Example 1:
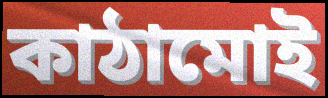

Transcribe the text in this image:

কাঠামোই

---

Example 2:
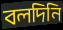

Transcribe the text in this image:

বলদিনি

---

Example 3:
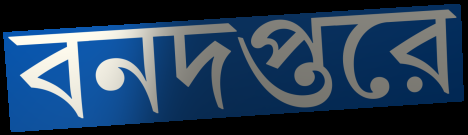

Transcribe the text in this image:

বনদপ্তরে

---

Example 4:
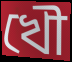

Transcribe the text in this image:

খৌ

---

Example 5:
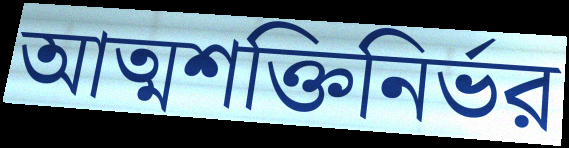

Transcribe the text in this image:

আত্মশক্তিনির্ভর